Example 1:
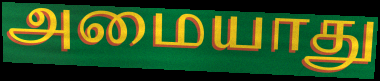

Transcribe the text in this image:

அமையாது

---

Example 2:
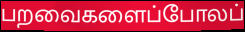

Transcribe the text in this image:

பறவைகளைப்போலப்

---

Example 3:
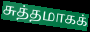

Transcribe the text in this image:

சுத்தமாகக்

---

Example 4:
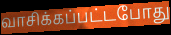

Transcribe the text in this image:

வாசிக்கப்பட்டபோது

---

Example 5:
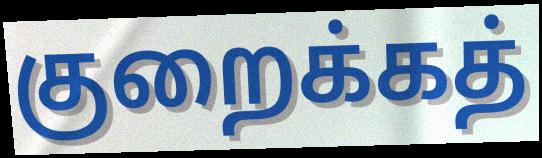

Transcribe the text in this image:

குறைக்கத்